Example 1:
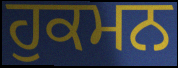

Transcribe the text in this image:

ਹੁਕਮਨ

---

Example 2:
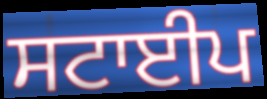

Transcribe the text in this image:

ਸਟਾਈਪ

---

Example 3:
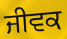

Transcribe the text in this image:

ਜੀਵਕ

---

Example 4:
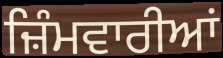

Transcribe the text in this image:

ਜ਼ਿੰਮਵਾਰੀਆਂ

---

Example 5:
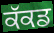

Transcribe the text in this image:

ਕੱਕਡ